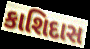
કાશિદાસ